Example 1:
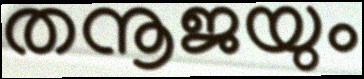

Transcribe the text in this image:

തനൂജയും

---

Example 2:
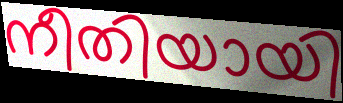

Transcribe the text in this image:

നീതിയായി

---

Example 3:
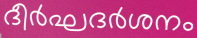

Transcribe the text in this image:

ദീർഘദർശനം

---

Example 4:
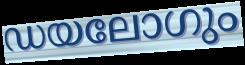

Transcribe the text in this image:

ഡയലോഗും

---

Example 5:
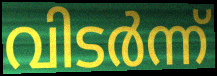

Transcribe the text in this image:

വിടർന്ന്